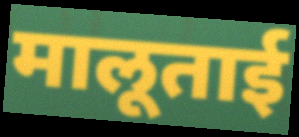
मालूताई